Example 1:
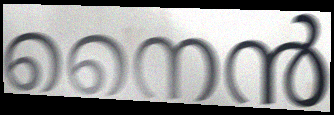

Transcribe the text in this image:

നൈൻ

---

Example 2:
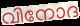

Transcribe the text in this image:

വിനോദ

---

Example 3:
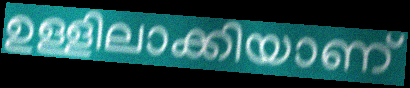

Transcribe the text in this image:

ഉള്ളിലാക്കിയാണ്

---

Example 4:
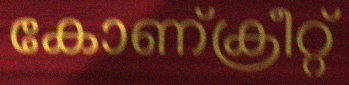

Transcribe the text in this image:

കോണ്ക്രീറ്റ്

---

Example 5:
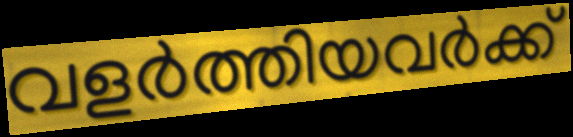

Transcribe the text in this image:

വളർത്തിയവർക്ക്